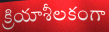
క్రియాశీలకంగా